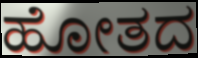
ಹೋತದ